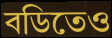
বডিতেও